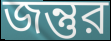
জন্তুর